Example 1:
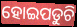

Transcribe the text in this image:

ହୋଇପଡୁଚି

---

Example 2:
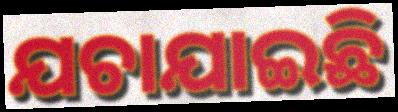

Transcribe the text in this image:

ଯଚାଯାଇଛି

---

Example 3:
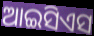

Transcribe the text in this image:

ଆଇସିଏସ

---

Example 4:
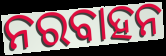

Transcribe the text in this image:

ନରବାହନ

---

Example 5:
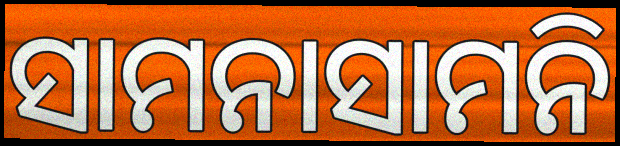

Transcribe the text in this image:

ସାମନାସାମନି